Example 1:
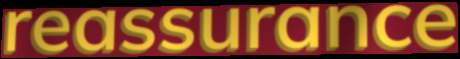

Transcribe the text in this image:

reassurance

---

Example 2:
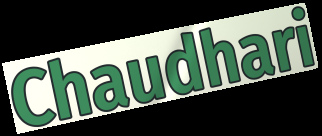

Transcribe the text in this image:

Chaudhari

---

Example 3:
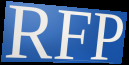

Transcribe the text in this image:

RFP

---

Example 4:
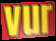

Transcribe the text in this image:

vur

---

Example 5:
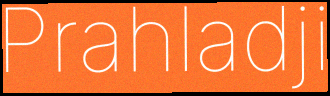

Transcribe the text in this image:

Prahladji